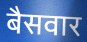
बैसवार